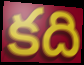
కది